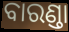
ବାରଣ୍ଡା